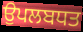
ਉਪਲਬਧਤ